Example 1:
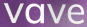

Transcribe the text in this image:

vave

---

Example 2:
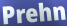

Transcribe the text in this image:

Prehn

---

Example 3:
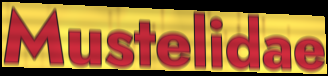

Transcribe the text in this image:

Mustelidae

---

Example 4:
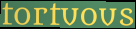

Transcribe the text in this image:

tortuous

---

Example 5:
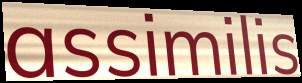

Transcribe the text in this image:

assimilis